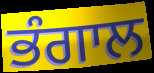
ਭੰਗਾਲ